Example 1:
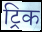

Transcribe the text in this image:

ट्रिक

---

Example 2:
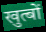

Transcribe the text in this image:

खुत्बों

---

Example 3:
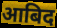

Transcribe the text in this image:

आबिद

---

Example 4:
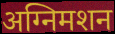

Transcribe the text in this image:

अग्निमशन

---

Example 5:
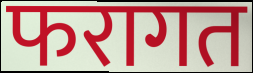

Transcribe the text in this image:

फरागत